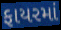
ફાયરમાં